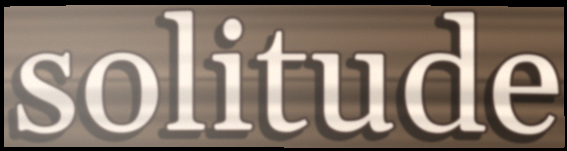
solitude